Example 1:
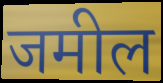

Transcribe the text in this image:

जमील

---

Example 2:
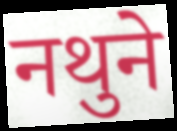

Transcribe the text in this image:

नथुने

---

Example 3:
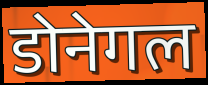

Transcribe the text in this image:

डोनेगल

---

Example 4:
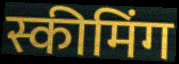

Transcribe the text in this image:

स्कीमिंग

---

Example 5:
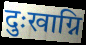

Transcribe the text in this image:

दुःखाग्नि